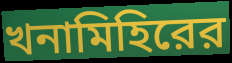
খনামিহিরের